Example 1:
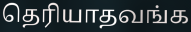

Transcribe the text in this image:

தெரியாதவங்க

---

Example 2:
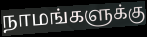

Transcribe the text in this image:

நாமங்களுக்கு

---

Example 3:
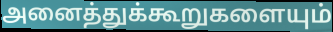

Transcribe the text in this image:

அனைத்துக்கூறுகளையும்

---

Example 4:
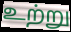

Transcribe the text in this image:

உற்று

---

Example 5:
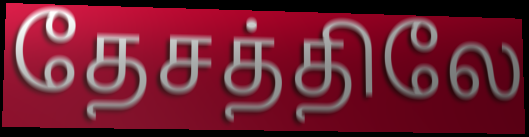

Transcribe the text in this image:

தேசத்திலே